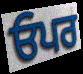
ਓਪਰ